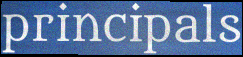
principals